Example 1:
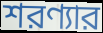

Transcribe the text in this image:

শরণ্যার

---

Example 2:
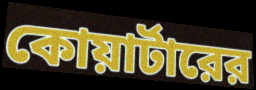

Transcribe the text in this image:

কোয়ার্টারের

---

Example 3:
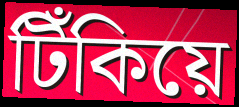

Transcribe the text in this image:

টিঁকিয়ে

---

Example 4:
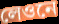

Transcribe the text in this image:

লেওনে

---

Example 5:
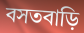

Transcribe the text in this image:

বসতবাড়ি